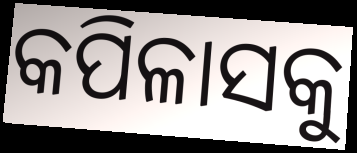
କପିଳାସକୁ